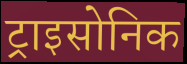
ट्राइसोनिक